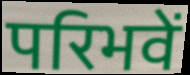
परिभवें